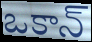
ఒకాన్